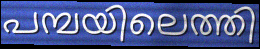
പമ്പയിലെത്തി